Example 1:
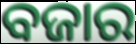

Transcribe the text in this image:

ବଜାର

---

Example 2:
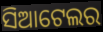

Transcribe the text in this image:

ସିଆଟେଲର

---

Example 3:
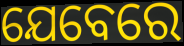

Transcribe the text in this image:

ଯେବେରେ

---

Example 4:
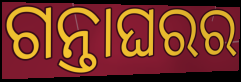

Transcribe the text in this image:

ଗନ୍ତାଘରର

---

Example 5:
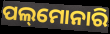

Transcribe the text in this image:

ପଲ୍‌ମୋନାରି